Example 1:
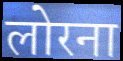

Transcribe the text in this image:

लोरना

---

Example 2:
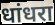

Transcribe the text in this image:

धांधरा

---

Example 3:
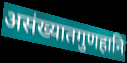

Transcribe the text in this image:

असंख्यातगुणहानि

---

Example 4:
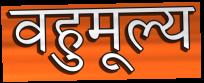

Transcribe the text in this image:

वहुमूल्य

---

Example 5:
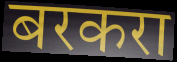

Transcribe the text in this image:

बरकरा